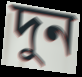
দুন